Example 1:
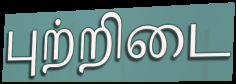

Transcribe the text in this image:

புற்றிடை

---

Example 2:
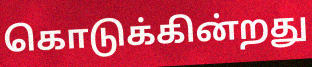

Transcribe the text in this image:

கொடுக்கின்றது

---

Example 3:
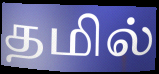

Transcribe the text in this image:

தமில்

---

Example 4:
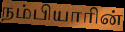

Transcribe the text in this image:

நம்பியாரின்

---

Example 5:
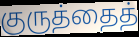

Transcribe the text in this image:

குருத்தைத்